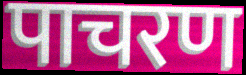
पाचरण